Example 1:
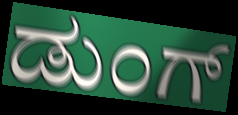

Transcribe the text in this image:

ಡುಂಗ್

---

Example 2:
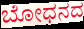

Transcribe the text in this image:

ಬೋಧನದ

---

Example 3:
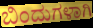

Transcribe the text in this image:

ಬಿಂದುಗಳಾಗಿ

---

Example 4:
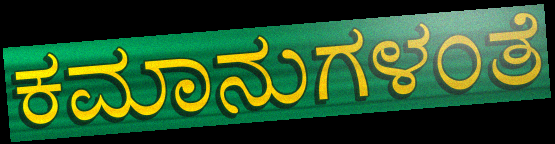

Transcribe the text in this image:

ಕಮಾನುಗಳಂತೆ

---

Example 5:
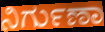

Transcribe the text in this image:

ನಿರ್ಗುಣಾ